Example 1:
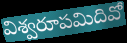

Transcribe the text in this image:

విశ్వరూపమిదివో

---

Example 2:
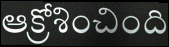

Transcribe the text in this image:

ఆక్రోశించింది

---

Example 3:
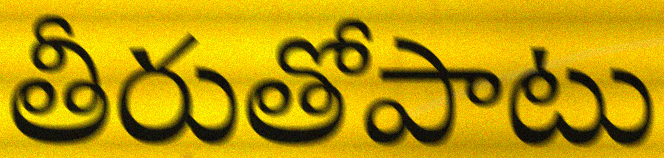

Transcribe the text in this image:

తీరుతోపాటు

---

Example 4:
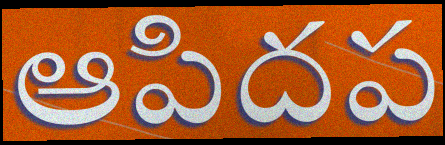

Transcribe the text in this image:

ఆపిదప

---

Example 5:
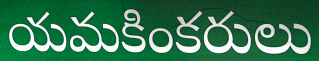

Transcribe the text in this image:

యమకింకరులు